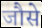
जौसे